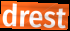
drest